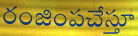
రంజింపచేస్తూ